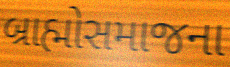
બ્રાહ્મોસમાજના